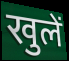
खुलें